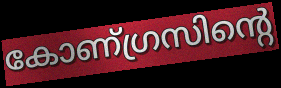
കോണ്ഗ്രസിന്റെ